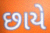
છાયે